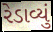
રેડાવ્યું